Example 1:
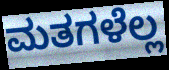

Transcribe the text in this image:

ಮತಗಳೆಲ್ಲ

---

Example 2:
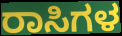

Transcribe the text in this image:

ರಾಸಿಗಳ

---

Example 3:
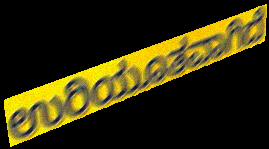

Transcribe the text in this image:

ಉರಿಯೂತವಾಗಿದೆ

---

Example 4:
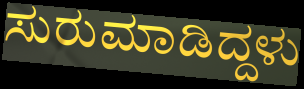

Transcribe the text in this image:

ಸುರುಮಾಡಿದ್ದಳು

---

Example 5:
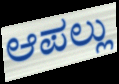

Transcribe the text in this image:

ಆಪಲ್ಲು